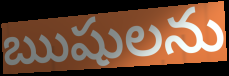
ఋషులను